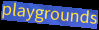
playgrounds